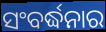
ସଂବର୍ଦ୍ଧନାର